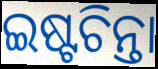
ଇଷ୍ଟଚିନ୍ତା